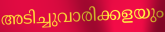
അടിച്ചുവാരിക്കളയും